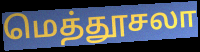
மெத்தூசலா